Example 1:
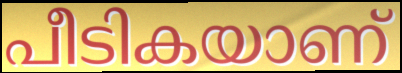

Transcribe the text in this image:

പീടികയാണ്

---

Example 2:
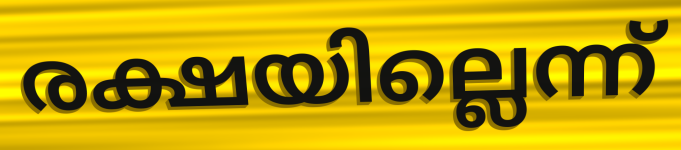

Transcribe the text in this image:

രക്ഷയില്ലെന്ന്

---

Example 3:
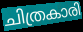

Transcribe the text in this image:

ചിത്രകാരി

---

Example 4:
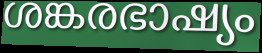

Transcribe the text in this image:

ശങ്കരഭാഷ്യം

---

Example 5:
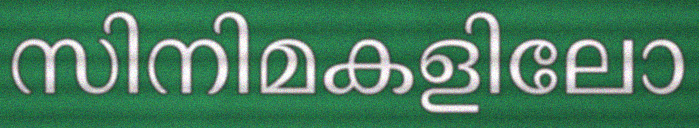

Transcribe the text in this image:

സിനിമകളിലോ